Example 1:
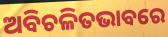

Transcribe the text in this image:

ଅବିଚଳିତଭାବରେ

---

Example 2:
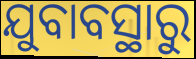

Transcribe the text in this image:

ଯୁବାବସ୍ଥାରୁ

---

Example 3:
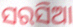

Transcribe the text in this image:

ସରସିଆ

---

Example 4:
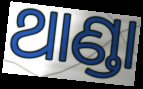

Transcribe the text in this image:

ଥାଣ୍ଡା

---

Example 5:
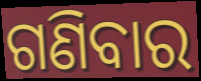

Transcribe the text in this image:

ଗଣିବାର